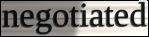
negotiated